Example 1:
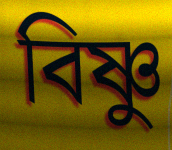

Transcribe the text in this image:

বিষ্ণু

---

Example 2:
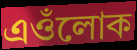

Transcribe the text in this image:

এওঁলোক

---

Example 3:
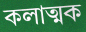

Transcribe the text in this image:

কলাত্মক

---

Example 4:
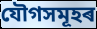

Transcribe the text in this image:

যৌগসমূহৰ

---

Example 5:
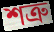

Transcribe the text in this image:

শত্ৰু